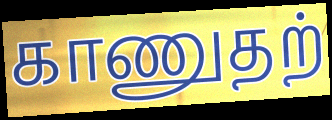
காணுதற்